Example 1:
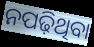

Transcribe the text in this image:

ନପଢ଼ିଥିବା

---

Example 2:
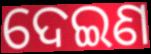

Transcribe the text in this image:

ଦେଇଣ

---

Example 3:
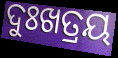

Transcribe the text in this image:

ଦୁଃଖତ୍ରୟ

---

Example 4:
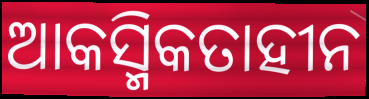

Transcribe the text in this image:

ଆକସ୍ମିକତାହୀନ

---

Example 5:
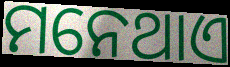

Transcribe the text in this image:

ମନେଥାଏ